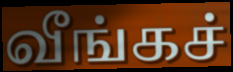
வீங்கச்